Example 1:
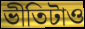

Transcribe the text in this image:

ভীতিটাও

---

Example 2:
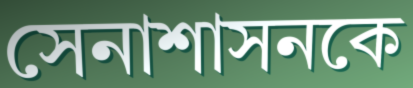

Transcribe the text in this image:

সেনাশাসনকে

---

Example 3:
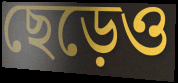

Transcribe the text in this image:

ছেড়েও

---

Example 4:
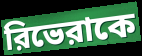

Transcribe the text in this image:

রিভেরাকে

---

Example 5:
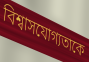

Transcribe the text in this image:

বিশ্বাসযোগ্যতাকে